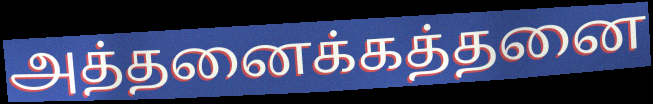
அத்தனைக்கத்தனை